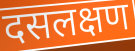
दसलक्षण